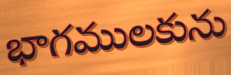
భాగములకును